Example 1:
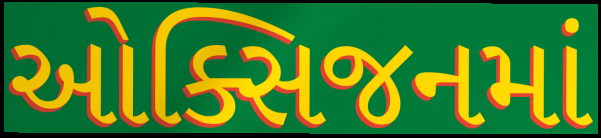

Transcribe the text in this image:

ઓક્સિજનમાં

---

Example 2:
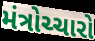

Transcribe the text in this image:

મંત્રોચ્ચારો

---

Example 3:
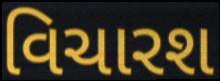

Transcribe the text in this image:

વિચારશ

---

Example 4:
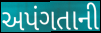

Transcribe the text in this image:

અપંગતાની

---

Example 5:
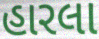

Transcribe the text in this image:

હારલા